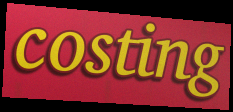
costing